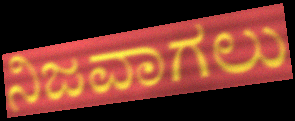
ನಿಜವಾಗಲು